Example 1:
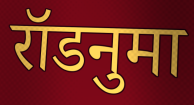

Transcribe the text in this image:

रॉडनुमा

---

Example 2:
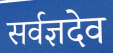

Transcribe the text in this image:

सर्वज्ञदेव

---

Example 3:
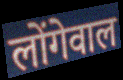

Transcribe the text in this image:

लोंगेवाल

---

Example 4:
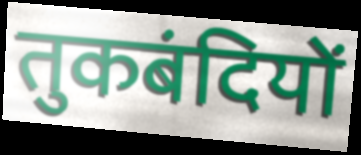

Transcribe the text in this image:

तुकबंदियों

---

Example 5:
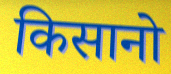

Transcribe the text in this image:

किसानो